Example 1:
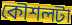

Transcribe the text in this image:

কৌশলটা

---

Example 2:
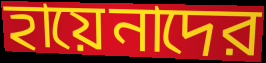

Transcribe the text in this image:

হায়েনাদের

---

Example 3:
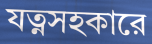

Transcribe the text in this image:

যত্নসহকারে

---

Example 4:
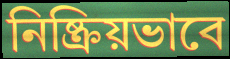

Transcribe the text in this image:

নিষ্ক্রিয়ভাবে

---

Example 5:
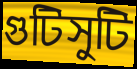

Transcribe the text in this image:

গুটিসুটি